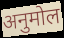
अनुमोल